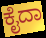
ಕೈದಾ